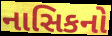
નાસિકનો